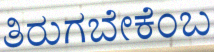
ತಿರುಗಬೇಕೆಂಬ